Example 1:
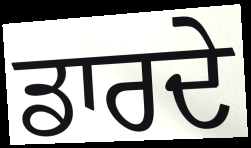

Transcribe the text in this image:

ਡਾਰਦੇ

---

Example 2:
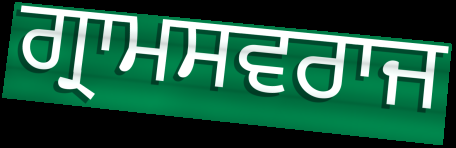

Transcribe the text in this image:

ਗ੍ਰਾਮਸਵਰਾਜ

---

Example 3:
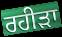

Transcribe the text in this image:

ਰਹੀੜਾ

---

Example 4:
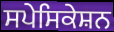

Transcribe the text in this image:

ਸਪੇਸਿਕੇਸ਼ਨ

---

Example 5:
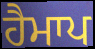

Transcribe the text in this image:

ਹੈਮਾਪ